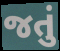
જતું